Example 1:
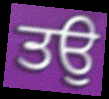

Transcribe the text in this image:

ਤਉ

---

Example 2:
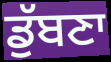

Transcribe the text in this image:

ਡੁੱਬਣਾ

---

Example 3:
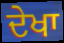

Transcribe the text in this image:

ਦੇਖਾ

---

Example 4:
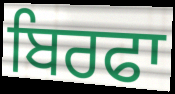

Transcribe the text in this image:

ਬਿਰਫਾ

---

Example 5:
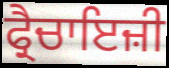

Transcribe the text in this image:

ਫ੍ਰੈਚਾਇਜ਼ੀ